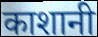
काशानी